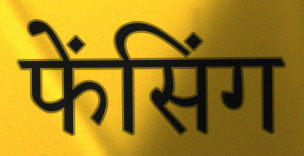
फेंसिंग